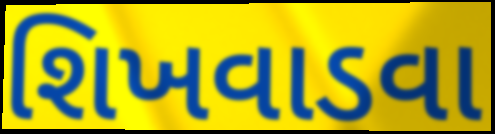
શિખવાડવા